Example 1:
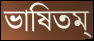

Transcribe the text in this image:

ভাষিতম্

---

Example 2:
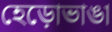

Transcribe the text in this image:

হেড়োভাঙা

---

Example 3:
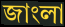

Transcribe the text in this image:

জাংলা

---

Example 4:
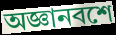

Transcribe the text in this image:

অজ্ঞানবশে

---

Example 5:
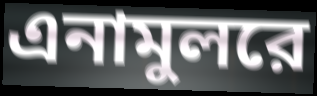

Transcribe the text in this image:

এনামুলরে